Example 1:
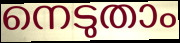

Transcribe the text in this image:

നെടുതാം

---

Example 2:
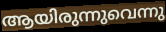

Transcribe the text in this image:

ആയിരുന്നുവെന്നു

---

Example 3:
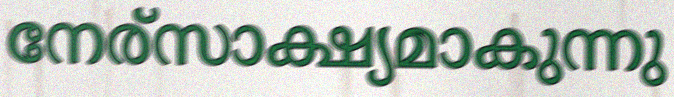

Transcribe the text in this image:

നേര്സാക്ഷ്യമാകുന്നു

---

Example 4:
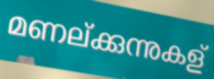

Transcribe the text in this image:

മണല്ക്കുന്നുകള്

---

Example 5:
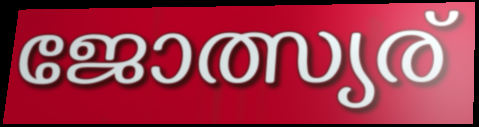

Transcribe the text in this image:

ജോത്സ്യര്